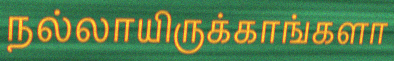
நல்லாயிருக்காங்களா